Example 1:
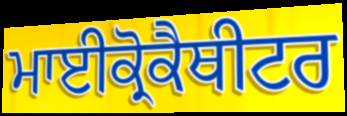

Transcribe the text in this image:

ਮਾਈਕ੍ਰੋਕੈਥੀਟਰ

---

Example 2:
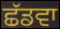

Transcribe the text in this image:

ਛੱਡਵਾ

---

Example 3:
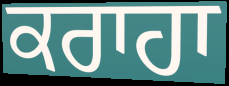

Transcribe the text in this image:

ਕਰਾਹਾ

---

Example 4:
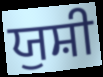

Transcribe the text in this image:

ਯੁਸ਼ੀ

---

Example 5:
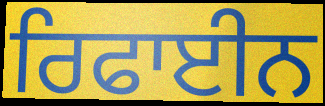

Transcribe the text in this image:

ਰਿਫਾਈਨ